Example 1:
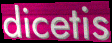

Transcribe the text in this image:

dicetis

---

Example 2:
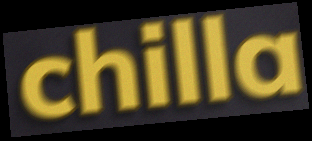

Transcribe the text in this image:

chilla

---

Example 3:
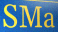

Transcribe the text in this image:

SMa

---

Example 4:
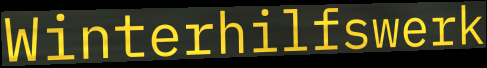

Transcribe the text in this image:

Winterhilfswerk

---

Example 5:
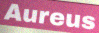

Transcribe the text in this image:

Aureus